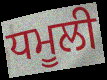
ਧਮੂਲੀ